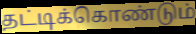
தட்டிக்கொண்டும்